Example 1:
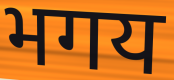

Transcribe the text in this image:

भगय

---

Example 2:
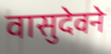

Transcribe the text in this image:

वासुदेवने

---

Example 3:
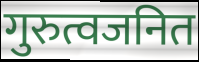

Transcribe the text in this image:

गुरुत्वजनित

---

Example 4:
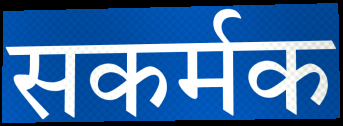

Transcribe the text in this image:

सकर्मक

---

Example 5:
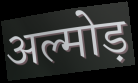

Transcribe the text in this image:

अल्मोड़